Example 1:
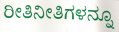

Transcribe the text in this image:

ರೀತಿನೀತಿಗಳನ್ನೂ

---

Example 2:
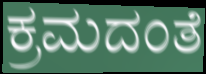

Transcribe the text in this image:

ಕ್ರಮದಂತೆ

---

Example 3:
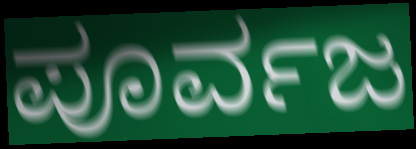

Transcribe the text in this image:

ಪೂರ್ವಜ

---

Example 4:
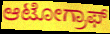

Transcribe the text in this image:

ಆಟೋಗ್ರಾಫ್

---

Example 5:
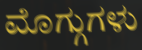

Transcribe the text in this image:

ಮೊಗ್ಗುಗಳು